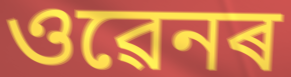
ওৱেনৰ